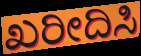
ಖರೀದಿಸಿ